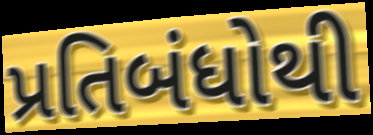
પ્રતિબંધોથી